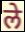
ले